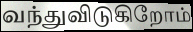
வந்துவிடுகிறோம்